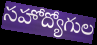
సహోద్యోగుల